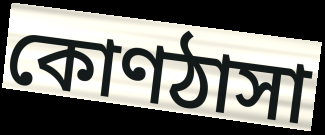
কোণঠাসা